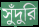
সুঁদুরি